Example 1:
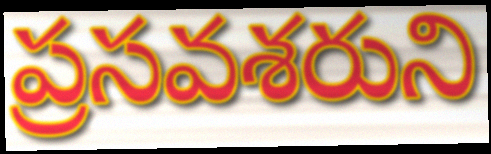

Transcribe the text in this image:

ప్రసవశరుని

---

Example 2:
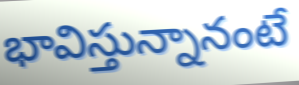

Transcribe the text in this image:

భావిస్తున్నానంటే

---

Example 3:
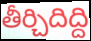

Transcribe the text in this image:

తీర్చిదిద్ది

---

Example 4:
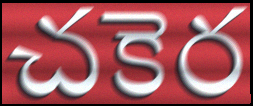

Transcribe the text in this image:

చకెర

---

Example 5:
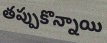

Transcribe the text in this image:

తప్పుకొన్నాయి